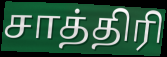
சாத்திரி